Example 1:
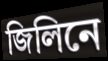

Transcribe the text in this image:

জিলিনে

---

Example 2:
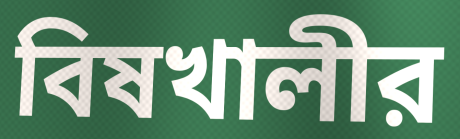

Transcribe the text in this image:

বিষখালীর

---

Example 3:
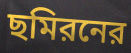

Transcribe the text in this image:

ছমিরনের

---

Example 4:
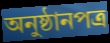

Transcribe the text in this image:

অনুষ্ঠানপত্র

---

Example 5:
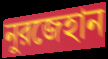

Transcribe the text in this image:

নুরজেহান